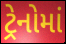
ટ્રેનોમાં